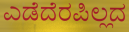
ಎಡೆದೆರಪಿಲ್ಲದ